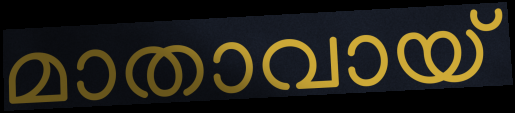
മാതാവായ്